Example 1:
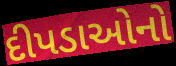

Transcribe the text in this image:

દીપડાઓનો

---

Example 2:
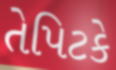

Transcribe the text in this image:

તેપિટકે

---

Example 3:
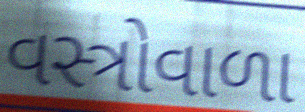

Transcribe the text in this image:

વસ્ત્રોવાળા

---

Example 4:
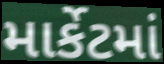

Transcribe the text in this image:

માર્કેટમાં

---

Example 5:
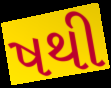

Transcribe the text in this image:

ષથી